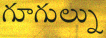
గూగుల్ను